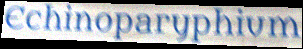
Echinoparyphium